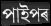
পাইপৰ